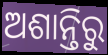
ଅଶାନ୍ତିରୁ